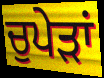
ਚੁਪੇੜਾਂ